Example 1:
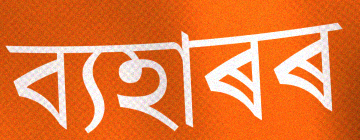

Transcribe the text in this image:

ব্যহাৰৰ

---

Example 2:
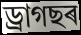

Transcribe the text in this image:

ড্ৰাগছৰ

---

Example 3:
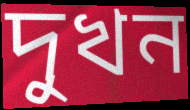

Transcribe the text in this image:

দুখন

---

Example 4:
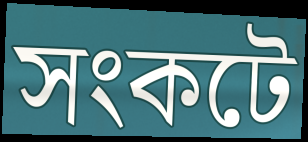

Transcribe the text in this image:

সংকটে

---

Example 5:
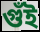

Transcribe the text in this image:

গুঁই